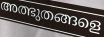
അത്ഭുതങ്ങളെ